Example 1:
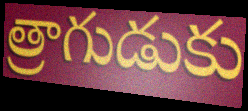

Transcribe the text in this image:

త్రాగుడుకు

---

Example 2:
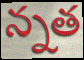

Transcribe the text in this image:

న్నత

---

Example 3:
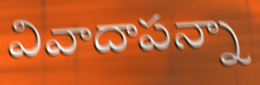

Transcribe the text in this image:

వివాదాపన్నా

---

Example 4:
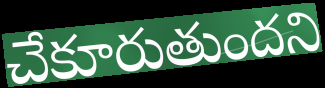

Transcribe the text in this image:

చేకూరుతుందని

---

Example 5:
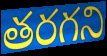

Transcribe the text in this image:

తరగని